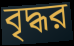
বৃদ্ধর